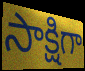
సాక్షిగా